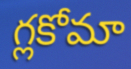
గ్లకోమా